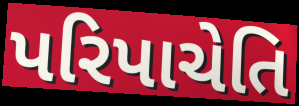
પરિપાચેતિ